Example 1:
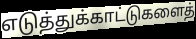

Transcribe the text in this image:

எடுத்துக்காட்டுகளைத்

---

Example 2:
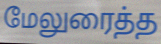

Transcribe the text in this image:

மேலுரைத்த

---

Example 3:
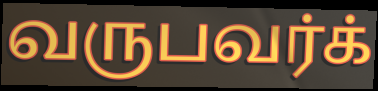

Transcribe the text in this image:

வருபவர்க்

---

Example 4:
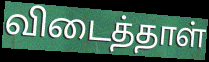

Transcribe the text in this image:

விடைத்தாள்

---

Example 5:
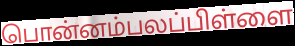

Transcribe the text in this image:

பொன்னம்பலப்பிள்ளை